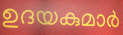
ഉദയകുമാർ